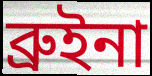
ব্রুইনা